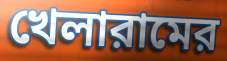
খেলারামের